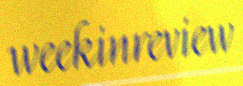
weekinreview